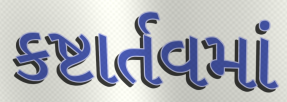
કષ્ટાર્તવમાં